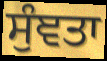
ਸੁੰਞਤਾ